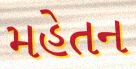
મહેતન